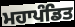
ਮਹਾਪੰਡਿਤ